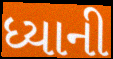
ધ્યાની